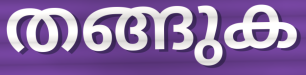
തങ്ങുക